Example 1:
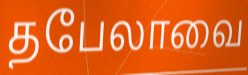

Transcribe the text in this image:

தபேலாவை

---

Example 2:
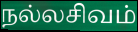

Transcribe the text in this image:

நல்லசிவம்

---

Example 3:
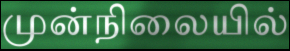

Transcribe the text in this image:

முன்நிலையில்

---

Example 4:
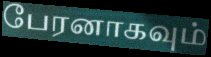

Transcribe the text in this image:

பேரனாகவும்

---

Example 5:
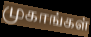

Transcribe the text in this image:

முகாங்கள்